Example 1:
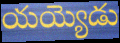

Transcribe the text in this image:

యయ్యెడు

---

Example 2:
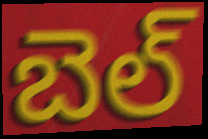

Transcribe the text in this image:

బెల్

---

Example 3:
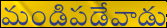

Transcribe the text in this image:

మండిపడేవాడు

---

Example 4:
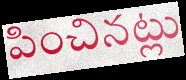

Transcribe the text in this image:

పించినట్లు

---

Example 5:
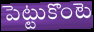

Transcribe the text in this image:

పెట్టుకొంటె